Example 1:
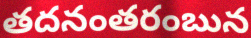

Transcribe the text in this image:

తదనంతరంబున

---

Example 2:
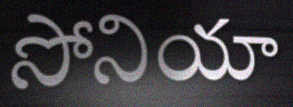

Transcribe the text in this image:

సోనియా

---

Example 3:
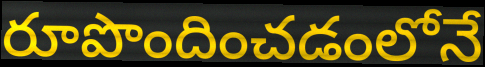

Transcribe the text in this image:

రూపొందించడంలోనే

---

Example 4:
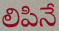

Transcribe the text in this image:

లిపినే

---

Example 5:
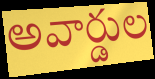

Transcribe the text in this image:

అవార్డుల